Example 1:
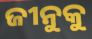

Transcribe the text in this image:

ଜୀନୁକୁ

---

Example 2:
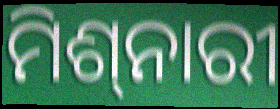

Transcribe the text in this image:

ମିଶ୍‍ନାରୀ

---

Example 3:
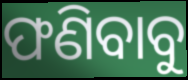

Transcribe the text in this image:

ଫଣିବାବୁ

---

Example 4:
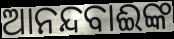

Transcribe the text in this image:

ଆନନ୍ଦବାଈଙ୍କ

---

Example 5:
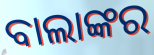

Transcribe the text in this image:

ବାଲାଙ୍କର